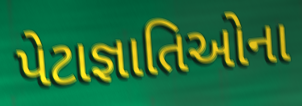
પેટાજ્ઞાતિઓના